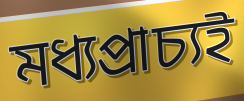
মধ্যপ্রাচ্যই